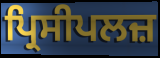
ਪ੍ਰਿਸੀਪਲਜ਼